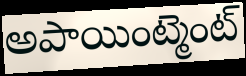
అపాయింట్మెంట్